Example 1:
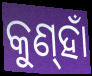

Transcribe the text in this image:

କୁଣ୍‌ହାଁ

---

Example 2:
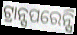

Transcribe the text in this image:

ଟ୍ରାନ୍ସପରେନ୍ସି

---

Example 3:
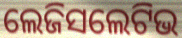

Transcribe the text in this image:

ଲେଜିସଲେଟିଭ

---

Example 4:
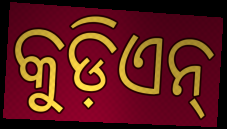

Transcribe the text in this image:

କୁଡ଼ିଏନ୍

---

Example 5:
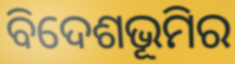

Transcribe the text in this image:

ବିଦେଶଭୂମିର